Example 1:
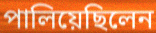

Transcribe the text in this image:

পালিয়েছিলেন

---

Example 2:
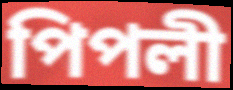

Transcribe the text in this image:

পিপলী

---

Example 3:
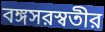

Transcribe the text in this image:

বঙ্গসরস্বতীর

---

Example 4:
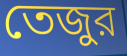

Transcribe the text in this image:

তেজুর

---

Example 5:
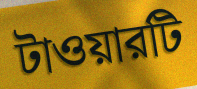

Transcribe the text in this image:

টাওয়ারটি